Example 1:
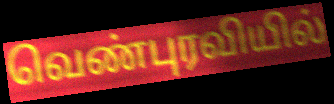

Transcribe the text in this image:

வெண்புரவியில்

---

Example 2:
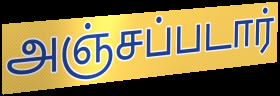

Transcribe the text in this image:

அஞ்சப்படார்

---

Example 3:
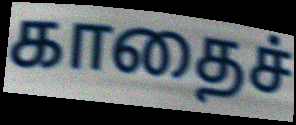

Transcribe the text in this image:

காதைச்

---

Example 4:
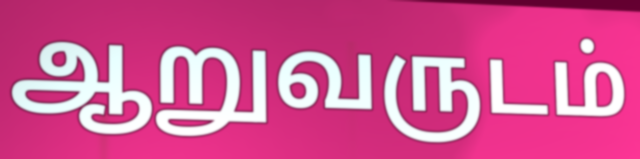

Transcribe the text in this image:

ஆறுவருடம்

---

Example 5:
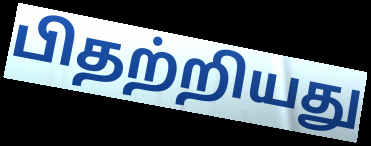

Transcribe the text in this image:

பிதற்றியது